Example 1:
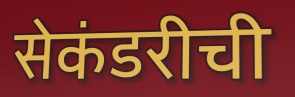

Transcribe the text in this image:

सेकंडरीची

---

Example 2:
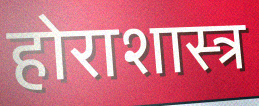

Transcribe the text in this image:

होराशास्त्र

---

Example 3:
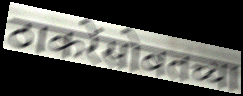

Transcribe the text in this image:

ठाकरेंसोबतच्या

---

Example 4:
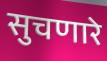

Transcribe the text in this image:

सुचणारे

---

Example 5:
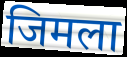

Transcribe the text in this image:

जिमला